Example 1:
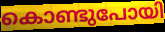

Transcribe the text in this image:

കൊണ്ടുപോയി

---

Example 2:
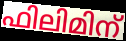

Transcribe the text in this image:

ഫിലിമിന്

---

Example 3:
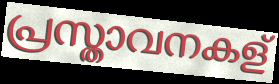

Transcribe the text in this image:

പ്രസ്താവനകള്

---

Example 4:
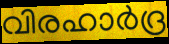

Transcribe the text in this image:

വിരഹാർദ്ര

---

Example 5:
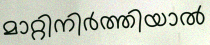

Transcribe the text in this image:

മാറ്റിനിർത്തിയാൽ